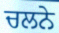
ਚਲਨੇ